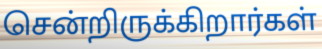
சென்றிருக்கிறார்கள்